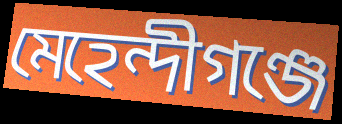
মেহেন্দীগঞ্জে